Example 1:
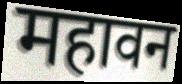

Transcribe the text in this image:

महावन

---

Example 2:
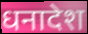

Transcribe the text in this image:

धनादेश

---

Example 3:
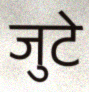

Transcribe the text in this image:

जुटे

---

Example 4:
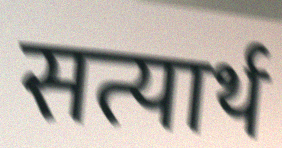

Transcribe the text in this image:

सत्यार्थ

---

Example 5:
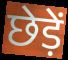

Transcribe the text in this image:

छेड़ें